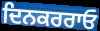
ਦਿਨਕਰਰਾਓ